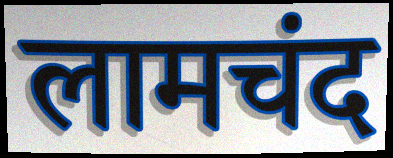
लामचंद